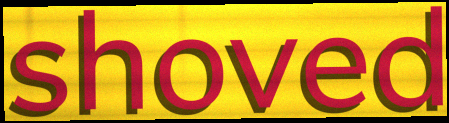
shoved